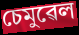
চেমুৱেল